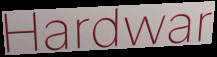
Hardwar